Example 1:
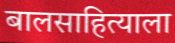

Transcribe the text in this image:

बालसाहित्याला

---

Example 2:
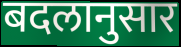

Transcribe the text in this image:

बदलानुसार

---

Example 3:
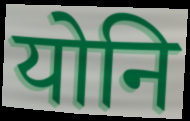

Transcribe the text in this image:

योनि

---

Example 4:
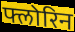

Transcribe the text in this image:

फ्लोरिन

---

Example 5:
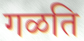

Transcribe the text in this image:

गळति